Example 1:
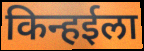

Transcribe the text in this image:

किन्हईला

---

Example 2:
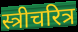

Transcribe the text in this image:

स्त्रीचरित्र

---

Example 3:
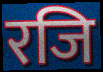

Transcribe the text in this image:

रजि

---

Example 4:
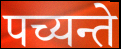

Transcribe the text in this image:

पच्यन्ते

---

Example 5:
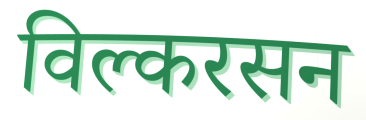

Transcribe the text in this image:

विल्करसन